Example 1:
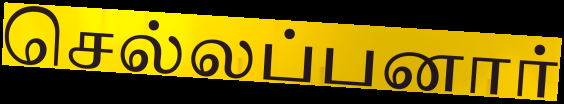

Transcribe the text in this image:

செல்லப்பனார்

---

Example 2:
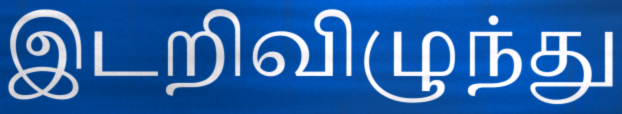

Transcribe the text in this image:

இடறிவிழுந்து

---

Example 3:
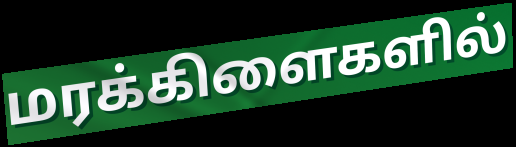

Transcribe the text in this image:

மரக்கிளைகளில்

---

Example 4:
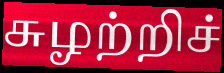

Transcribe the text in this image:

சுழற்றிச்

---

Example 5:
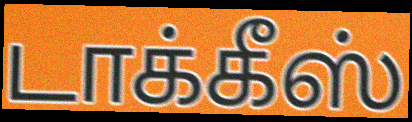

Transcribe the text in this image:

டாக்கீஸ்